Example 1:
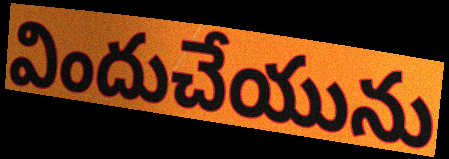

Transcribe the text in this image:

విందుచేయును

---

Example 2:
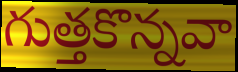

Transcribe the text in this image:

గుత్తకొన్నవా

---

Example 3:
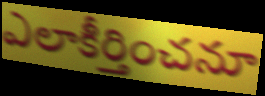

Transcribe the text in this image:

ఎలాకీర్తించనూ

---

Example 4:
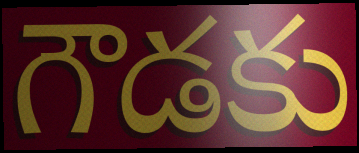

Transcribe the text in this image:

గౌడకు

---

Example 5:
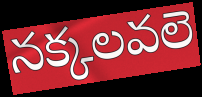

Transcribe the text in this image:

నక్కలవలె